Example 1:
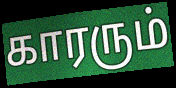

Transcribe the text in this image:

காரரும்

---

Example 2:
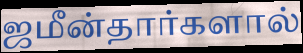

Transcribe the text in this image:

ஜமீன்தார்களால்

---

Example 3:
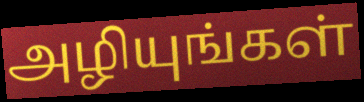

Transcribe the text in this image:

அழியுங்கள்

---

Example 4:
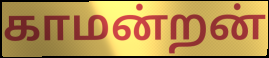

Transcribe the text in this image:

காமன்றன்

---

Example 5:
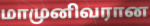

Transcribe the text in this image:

மாமுனிவரான